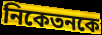
নিকেতনকে